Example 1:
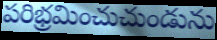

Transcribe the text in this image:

పరిభ్రమించుచుండును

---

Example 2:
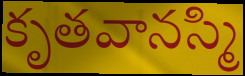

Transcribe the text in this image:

కృతవానస్మి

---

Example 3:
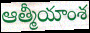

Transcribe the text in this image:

ఆత్మీయాంశ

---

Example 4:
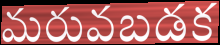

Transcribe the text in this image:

మరువబడక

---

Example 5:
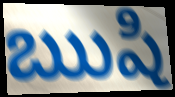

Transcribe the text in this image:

ఋషి